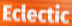
Eclectic